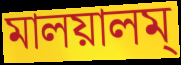
মালয়ালম্